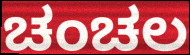
ಚಂಚಲ